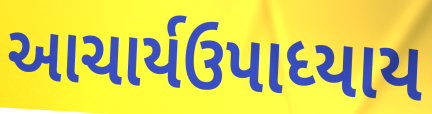
આચાર્યઉપાધ્યાય